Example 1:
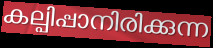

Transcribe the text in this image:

കല്പിപ്പാനിരിക്കുന്ന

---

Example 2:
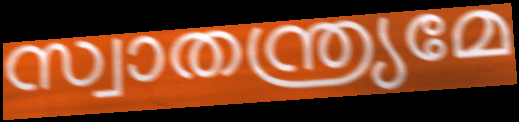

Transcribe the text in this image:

സ്വാതന്ത്ര്യമേ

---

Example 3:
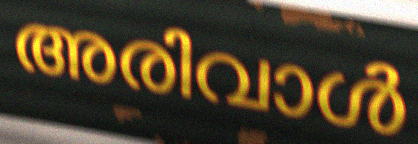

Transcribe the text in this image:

അരിവാൾ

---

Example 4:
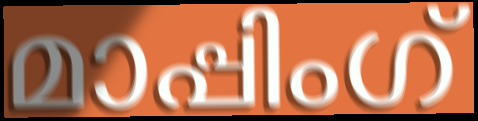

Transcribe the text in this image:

മാപ്പിംഗ്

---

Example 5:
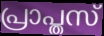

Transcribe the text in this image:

പ്രാപ്തസ്